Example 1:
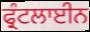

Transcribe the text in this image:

ਫ੍ਰੰਟਲਾਈਨ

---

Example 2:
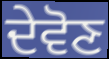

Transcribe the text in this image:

ਦੇਵੋਣ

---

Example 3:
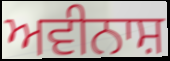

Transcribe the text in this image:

ਅਵੀਨਾਸ਼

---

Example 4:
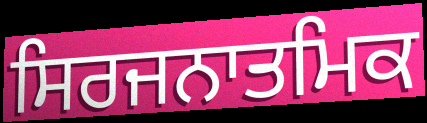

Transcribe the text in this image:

ਸਿਰਜਨਾਤਮਿਕ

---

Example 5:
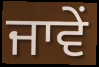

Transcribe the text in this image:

ਜਾਵੇਂ